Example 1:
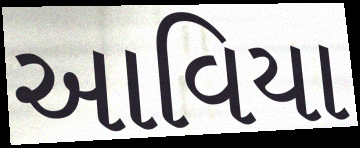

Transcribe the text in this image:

આવિયા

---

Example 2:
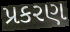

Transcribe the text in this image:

પ્રકરણ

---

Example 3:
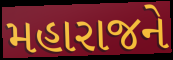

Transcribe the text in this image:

મહારાજને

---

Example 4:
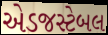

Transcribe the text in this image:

એડજસ્ટેબલ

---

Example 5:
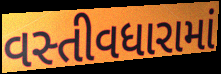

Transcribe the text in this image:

વસ્તીવધારામાં